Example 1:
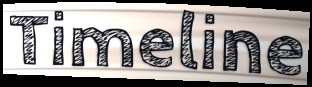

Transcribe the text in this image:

Timeline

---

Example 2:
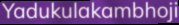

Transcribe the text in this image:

Yadukulakambhoji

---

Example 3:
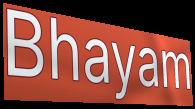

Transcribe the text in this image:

Bhayam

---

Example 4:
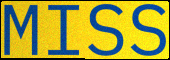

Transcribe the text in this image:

MISS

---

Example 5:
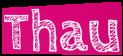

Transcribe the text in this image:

Thau